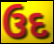
ઉદ